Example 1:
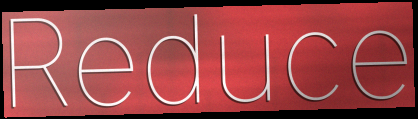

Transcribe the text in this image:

Reduce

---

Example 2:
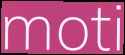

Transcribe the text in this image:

moti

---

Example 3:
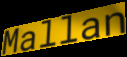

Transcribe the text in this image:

Mallan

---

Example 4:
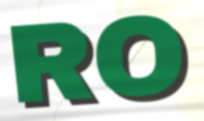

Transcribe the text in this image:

RO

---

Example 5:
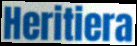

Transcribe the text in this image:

Heritiera